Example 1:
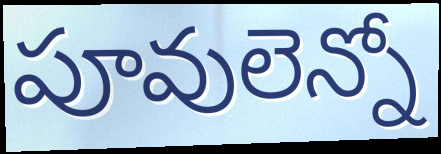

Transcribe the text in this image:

పూవులెన్నో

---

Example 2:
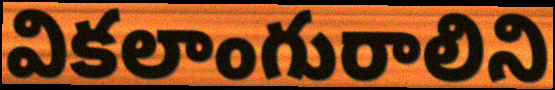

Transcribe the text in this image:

వికలాంగురాలిని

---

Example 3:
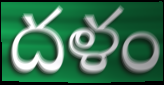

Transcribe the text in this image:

దళం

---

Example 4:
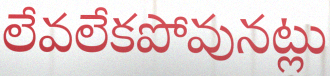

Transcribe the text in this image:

లేవలేకపోవునట్లు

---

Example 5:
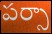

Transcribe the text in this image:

పర్సా